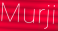
Murji